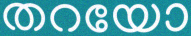
തറയോ